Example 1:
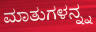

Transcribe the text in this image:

ಮಾತುಗಳನ್ನ್ನ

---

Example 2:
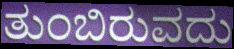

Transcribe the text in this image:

ತುಂಬಿರುವದು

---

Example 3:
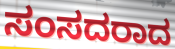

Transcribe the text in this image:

ಸಂಸದರಾದ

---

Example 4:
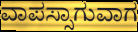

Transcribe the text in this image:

ವಾಪಸ್ಸಾಗುವಾಗ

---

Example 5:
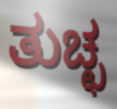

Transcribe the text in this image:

ತುಚ್ಛ